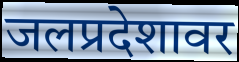
जलप्रदेशावर